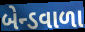
બેન્ડવાળા